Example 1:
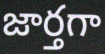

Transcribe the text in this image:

జార్తగా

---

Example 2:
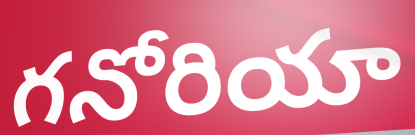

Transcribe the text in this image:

గనోరియా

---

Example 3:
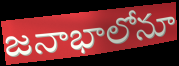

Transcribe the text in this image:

జనాభాలోనూ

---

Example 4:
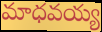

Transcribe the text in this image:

మాధవయ్య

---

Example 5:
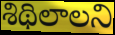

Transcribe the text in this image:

శిథిలాలని